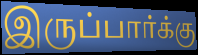
இருப்பார்க்கு